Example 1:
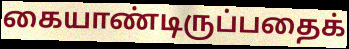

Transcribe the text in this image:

கையாண்டிருப்பதைக்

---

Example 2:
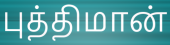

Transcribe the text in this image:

புத்திமான்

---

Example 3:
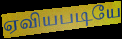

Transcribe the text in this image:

ஏவியபடியே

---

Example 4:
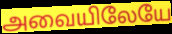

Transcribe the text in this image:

அவையிலேயே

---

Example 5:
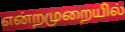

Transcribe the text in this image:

என்றமுறையில்